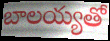
బాలయ్యతో